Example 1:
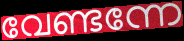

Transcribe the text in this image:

വേണ്ടന്നേ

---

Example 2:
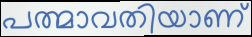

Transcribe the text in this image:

പത്മാവതിയാണ്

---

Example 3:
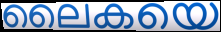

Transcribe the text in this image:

ലൈകയെ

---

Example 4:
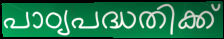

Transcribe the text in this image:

പാഠ്യപദ്ധതിക്ക്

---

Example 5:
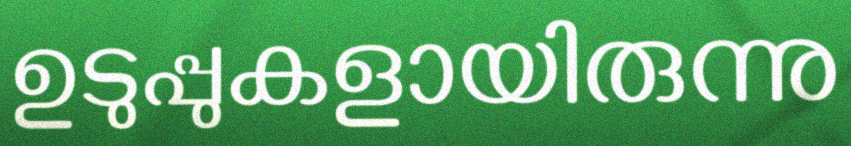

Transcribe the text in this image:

ഉടുപ്പുകളായിരുന്നു